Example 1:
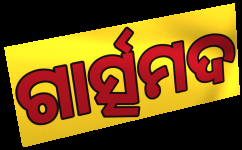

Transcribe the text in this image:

ଗାର୍ତ୍ସମଦ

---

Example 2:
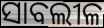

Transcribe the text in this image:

ସାବଲୀଳ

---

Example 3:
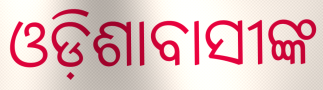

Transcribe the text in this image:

ଓଡ଼ିଶାବାସୀଙ୍କ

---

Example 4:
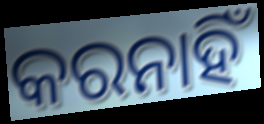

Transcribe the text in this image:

କରନାହିଁ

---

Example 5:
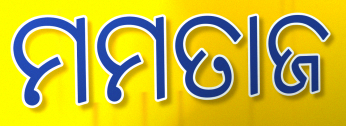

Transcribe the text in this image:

ମମତାଜ